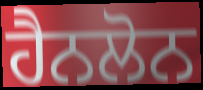
ਹੈਨਲੋਨ